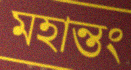
মহান্তং